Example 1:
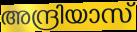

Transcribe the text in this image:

അന്ദ്രിയാസ്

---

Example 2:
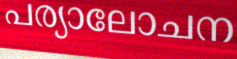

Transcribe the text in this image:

പര്യാലോചന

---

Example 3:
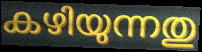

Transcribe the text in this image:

കഴിയുന്നതു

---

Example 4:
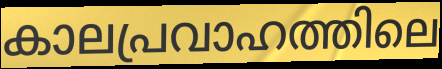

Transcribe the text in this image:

കാലപ്രവാഹത്തിലെ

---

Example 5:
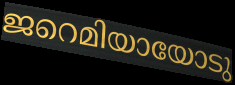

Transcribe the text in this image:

ജറെമിയായോടു